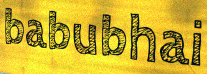
babubhai